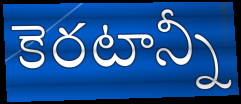
కెరటాన్నీ